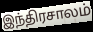
இந்திரசாலம்